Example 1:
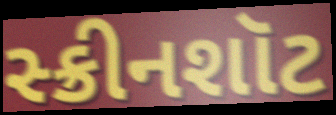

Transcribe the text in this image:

સ્ક્રીનશૉટ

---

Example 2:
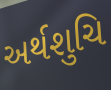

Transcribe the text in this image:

અર્થશુચિ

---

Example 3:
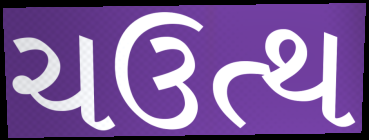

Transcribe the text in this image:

ચઉત્થ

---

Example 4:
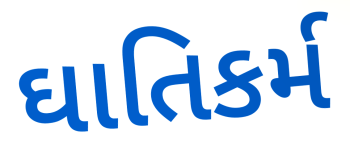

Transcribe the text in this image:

ઘાતિકર્મ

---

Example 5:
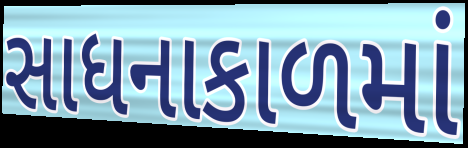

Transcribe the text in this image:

સાધનાકાળમાં